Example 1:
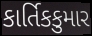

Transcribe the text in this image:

કાર્તિકકુમાર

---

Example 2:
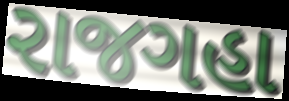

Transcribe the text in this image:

રાજગહા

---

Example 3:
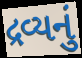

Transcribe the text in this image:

દ્રવ્યનું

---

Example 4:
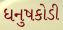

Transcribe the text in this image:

ધનુષકોડી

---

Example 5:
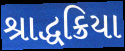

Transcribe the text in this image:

શ્રાદ્ધક્રિયા